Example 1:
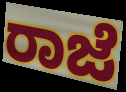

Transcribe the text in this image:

ರಾಜೆ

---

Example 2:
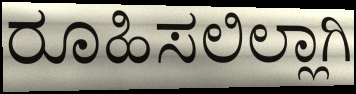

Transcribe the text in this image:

ರೂಹಿಸಲಿಲ್ಲಾಗಿ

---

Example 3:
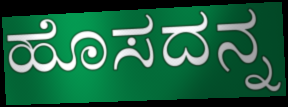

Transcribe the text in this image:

ಹೊಸದನ್ನ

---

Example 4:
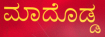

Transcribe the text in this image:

ಮಾದೊಡ್ಡ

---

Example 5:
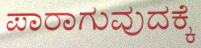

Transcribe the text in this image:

ಪಾರಾಗುವುದಕ್ಕೆ